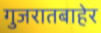
गुजरातबाहेर